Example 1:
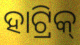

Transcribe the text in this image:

ହାଟ୍ରିକ୍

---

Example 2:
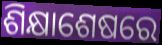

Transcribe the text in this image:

ଶିକ୍ଷାଶେଷରେ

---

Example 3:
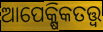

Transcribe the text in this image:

ଆପେକ୍ଷିକତତ୍ତ୍ୱ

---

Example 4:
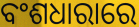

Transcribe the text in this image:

ବଂଶଧାରାରେ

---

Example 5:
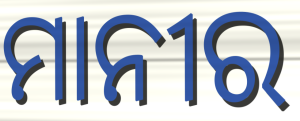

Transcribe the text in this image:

ମାନୀର